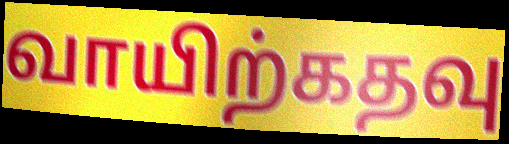
வாயிற்கதவு